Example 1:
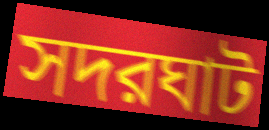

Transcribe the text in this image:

সদরঘাট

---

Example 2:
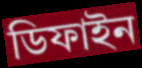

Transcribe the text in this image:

ডিফাইন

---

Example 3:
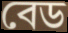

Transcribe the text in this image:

বেড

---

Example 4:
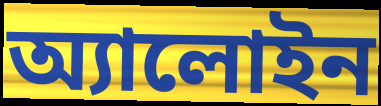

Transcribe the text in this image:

অ্যালোইন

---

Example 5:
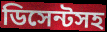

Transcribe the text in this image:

ডিসেন্টসহ